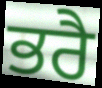
ਭਰੈ